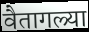
वैतागल्या